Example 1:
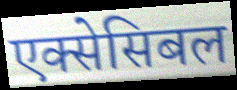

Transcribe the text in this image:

एक्सेसिबल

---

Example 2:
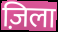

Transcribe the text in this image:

ज़िला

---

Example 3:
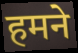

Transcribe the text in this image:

हमने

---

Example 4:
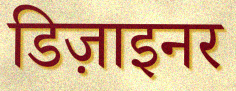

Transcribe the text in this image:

डिज़ाइनर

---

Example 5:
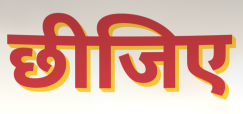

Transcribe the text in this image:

छीजिए